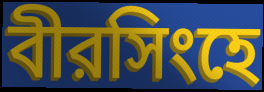
বীরসিংহে